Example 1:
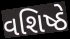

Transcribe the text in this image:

વશિષ્ઠે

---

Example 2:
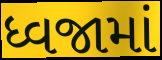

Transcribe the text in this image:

ધ્વજામાં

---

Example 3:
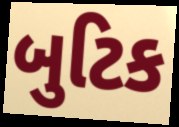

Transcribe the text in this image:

બુટિક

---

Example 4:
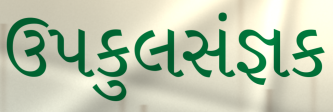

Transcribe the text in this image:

ઉપકુલસંજ્ઞક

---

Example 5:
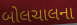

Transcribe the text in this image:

બોલચાલના